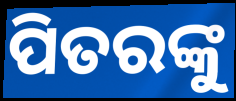
ପିତରଙ୍କୁ